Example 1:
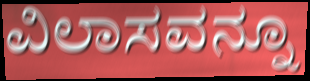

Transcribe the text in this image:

ವಿಲಾಸವನ್ನೂ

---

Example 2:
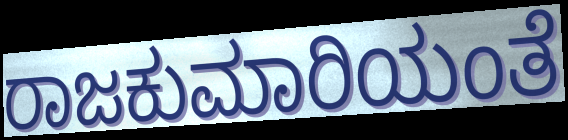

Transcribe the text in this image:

ರಾಜಕುಮಾರಿಯಂತೆ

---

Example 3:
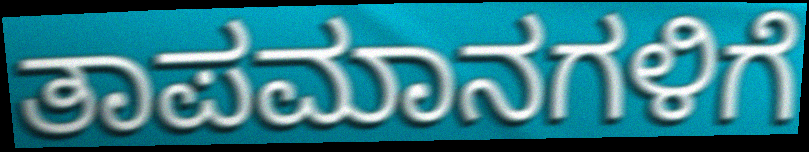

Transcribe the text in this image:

ತಾಪಮಾನಗಳಿಗೆ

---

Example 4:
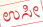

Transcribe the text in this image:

ಉಸೀ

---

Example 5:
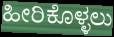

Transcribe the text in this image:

ಹೀರಿಕೊಳ್ಳಲು